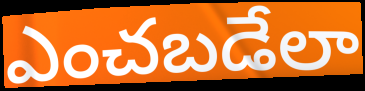
ఎంచబడేలా